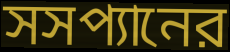
সসপ্যানের